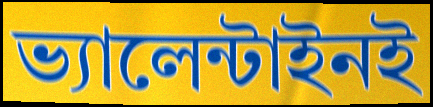
ভ্যালেন্টাইনই